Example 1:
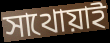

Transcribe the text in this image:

সাথোয়াই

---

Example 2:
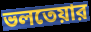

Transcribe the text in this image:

ভলতেয়ার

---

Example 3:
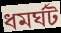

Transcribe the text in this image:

ধমর্ঘট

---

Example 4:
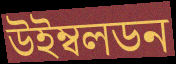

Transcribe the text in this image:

উইম্বলডন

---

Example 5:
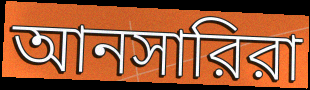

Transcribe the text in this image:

আনসারিরা